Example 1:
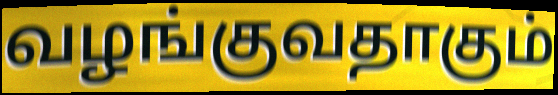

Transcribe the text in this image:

வழங்குவதாகும்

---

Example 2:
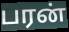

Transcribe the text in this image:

பரன்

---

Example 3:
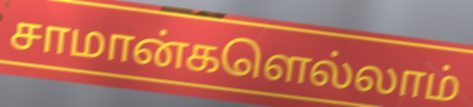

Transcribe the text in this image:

சாமான்களெல்லாம்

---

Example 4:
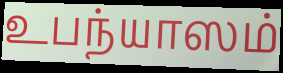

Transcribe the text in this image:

உபந்யாஸம்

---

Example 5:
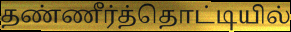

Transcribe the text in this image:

தண்ணீர்த்தொட்டியில்